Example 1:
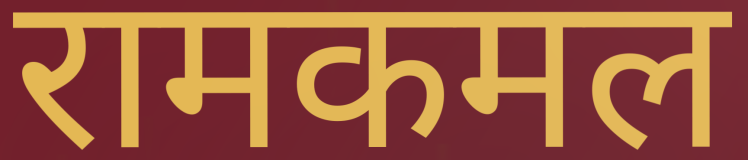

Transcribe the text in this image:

रामकमल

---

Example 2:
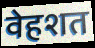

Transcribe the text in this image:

वेहशत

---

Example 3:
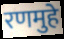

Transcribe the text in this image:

रणमुहे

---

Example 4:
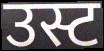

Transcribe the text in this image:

उस्ट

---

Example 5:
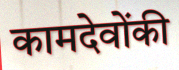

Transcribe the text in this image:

कामदेवोंकी